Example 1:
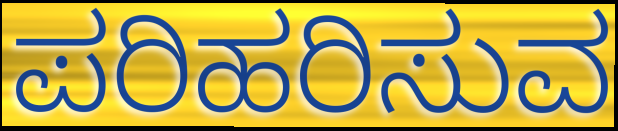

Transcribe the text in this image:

ಪರಿಹರಿಸುವ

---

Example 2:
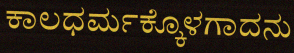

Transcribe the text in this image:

ಕಾಲಧರ್ಮಕ್ಕೊಳಗಾದನು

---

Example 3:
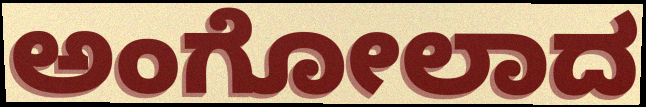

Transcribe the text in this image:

ಅಂಗೋಲಾದ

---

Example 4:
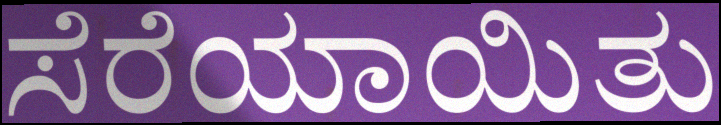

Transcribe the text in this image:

ಸೆರೆಯಾಯಿತು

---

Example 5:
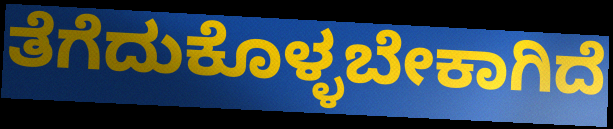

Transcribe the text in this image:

ತೆಗೆದುಕೊಳ್ಳಬೇಕಾಗಿದೆ